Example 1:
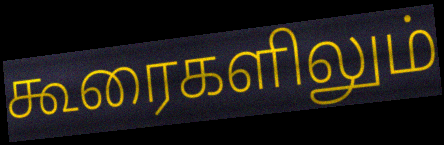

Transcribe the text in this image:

கூரைகளிலும்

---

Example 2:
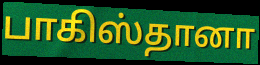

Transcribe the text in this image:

பாகிஸ்தானா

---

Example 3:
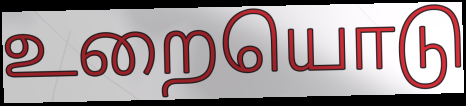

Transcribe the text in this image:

உறையொடு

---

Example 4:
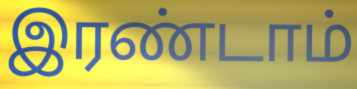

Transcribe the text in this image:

இரண்டாம்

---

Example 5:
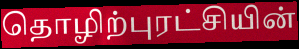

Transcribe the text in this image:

தொழிற்புரட்சியின்